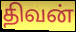
திவன்